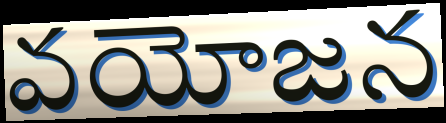
వయోజన